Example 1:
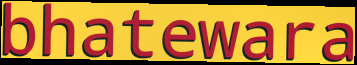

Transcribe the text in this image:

bhatewara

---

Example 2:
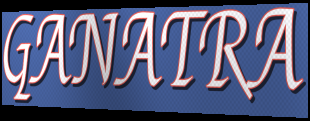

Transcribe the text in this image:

GANATRA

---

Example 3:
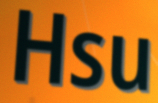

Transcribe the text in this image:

Hsu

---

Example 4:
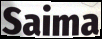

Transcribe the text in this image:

Saima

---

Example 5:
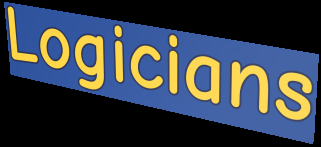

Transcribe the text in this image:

Logicians